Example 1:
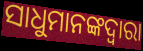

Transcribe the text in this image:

ସାଧୁମାନଙ୍କଦ୍ଵାରା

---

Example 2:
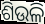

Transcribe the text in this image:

ଶିଉଳି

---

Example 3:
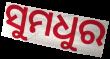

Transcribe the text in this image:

ସୁମଧୁର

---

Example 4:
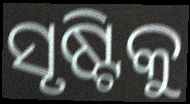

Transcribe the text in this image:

ସୃଷ୍ଟିକୁ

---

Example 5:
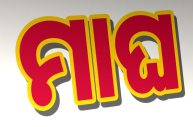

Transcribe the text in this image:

ମାଘ